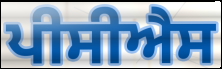
ਪੀਸੀਐਸ